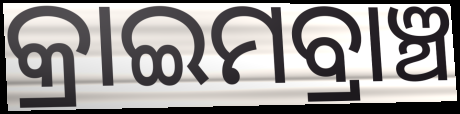
କ୍ରାଇମବ୍ରାଞ୍ଚ